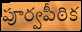
పూర్వపీఠిక